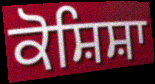
ਕੋਸ਼ਿਸ਼ਾ